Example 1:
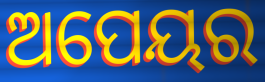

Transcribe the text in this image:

ଅପେୟର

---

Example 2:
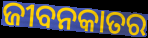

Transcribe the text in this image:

ଜୀବନକାତର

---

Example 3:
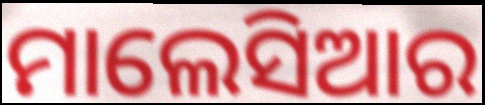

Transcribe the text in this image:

ମାଲେସିଆର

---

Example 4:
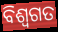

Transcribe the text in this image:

ବିଶ୍ୱଗତ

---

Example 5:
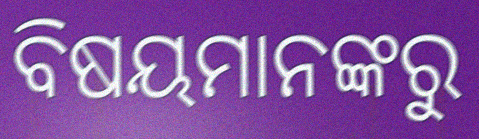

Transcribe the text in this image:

ବିଷୟମାନଙ୍କରୁ